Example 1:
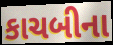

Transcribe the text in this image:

કાચબીના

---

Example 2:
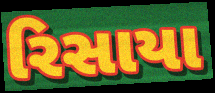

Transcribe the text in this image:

રિસાયા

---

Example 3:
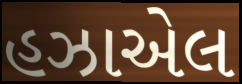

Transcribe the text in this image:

હઝાએલ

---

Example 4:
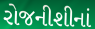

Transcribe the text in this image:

રોજનીશીનાં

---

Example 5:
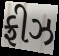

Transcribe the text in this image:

ફ્રીઝ